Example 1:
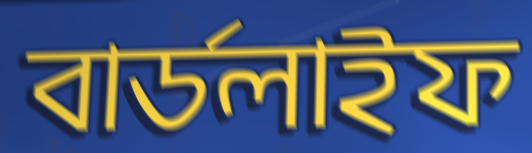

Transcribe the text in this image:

বার্ডলাইফ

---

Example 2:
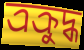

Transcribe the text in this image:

ত্রক্রুদ্ধ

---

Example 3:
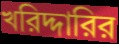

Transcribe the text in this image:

খরিদ্দারির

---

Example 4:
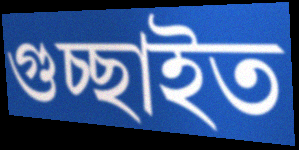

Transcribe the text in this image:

গুচ্ছাইত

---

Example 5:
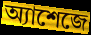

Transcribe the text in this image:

অ্যাশেজে